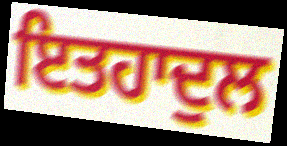
ਇਤਹਾਦੁਲ